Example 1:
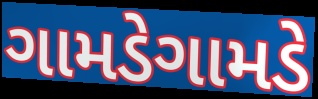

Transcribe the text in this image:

ગામડેગામડે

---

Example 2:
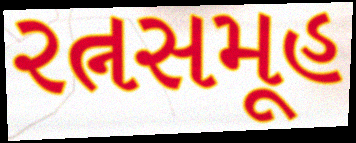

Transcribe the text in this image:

રત્નસમૂહ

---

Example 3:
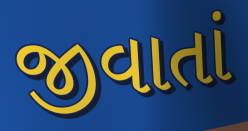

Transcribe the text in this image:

જીવાતાં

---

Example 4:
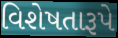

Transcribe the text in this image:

વિશેષતારૂપે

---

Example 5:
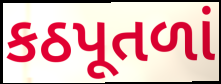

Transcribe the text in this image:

કઠપૂતળાં